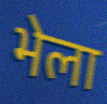
भेला